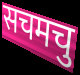
सचमचु